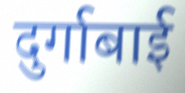
दुर्गाबाई